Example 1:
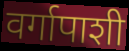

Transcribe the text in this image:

वर्गापाशी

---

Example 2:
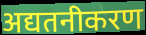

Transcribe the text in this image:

अद्यतनीकरण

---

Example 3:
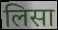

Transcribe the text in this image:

लिसा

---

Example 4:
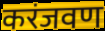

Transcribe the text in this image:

करंजवण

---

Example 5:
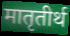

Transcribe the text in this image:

मातृतीर्थ